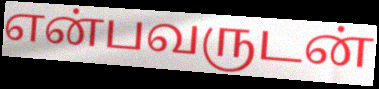
என்பவருடன்